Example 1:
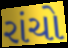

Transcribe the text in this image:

રાંચો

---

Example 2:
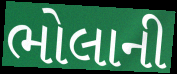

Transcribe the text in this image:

ભોલાની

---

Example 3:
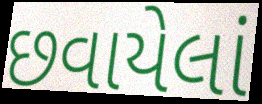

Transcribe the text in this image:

છવાયેલાં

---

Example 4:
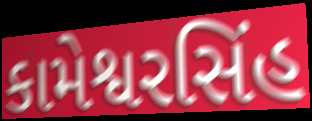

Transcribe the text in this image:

કામેશ્વરસિંહ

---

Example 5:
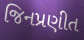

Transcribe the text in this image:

જિનપ્રણીત